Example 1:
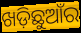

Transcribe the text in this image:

ଖଡ଼ିଛୁଆଁର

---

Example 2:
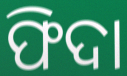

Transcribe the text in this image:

ଫିଦା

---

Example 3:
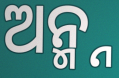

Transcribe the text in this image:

ଅନ୍ମ୍ନ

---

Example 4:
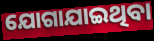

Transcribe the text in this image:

ଯୋଗାଯାଇଥିବା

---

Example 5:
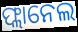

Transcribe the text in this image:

ଫ୍ଲାନେଲ